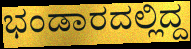
ಭಂಡಾರದಲ್ಲಿದ್ದ